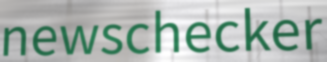
newschecker